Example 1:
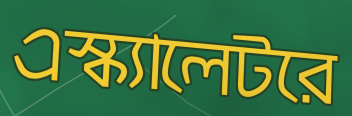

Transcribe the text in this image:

এস্ক্যালেটরে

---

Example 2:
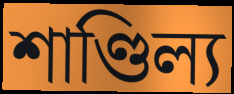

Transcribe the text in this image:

শাণ্ডিল্য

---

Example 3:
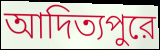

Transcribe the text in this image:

আদিত্যপুরে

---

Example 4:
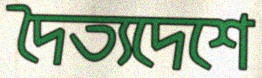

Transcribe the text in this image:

দৈত্যদেশে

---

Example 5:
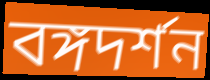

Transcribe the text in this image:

বঙ্গদর্শন